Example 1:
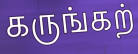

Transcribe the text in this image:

கருங்கற்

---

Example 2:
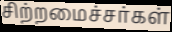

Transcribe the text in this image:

சிற்றமைச்சர்கள்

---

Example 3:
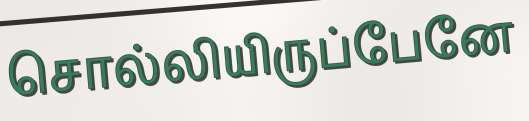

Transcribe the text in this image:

சொல்லியிருப்பேனே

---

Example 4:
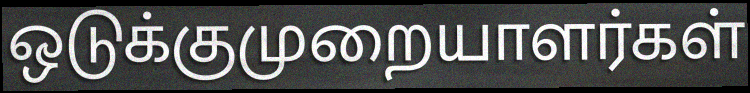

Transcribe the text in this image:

ஒடுக்குமுறையாளர்கள்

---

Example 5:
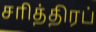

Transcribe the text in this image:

சரித்திரப்